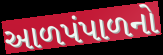
આળપંપાળનો